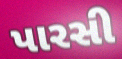
પારસી